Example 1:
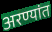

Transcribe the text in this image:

अरण्यांत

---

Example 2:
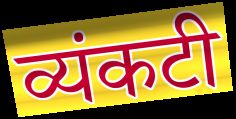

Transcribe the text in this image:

व्यंकटी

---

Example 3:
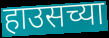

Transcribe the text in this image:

हाउसच्या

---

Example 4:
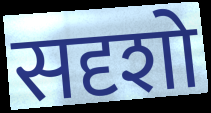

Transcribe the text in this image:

सदृशो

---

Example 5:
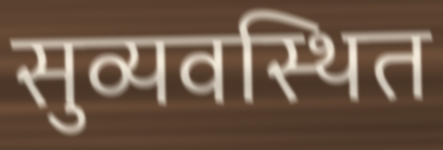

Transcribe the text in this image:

सुव्यवस्थित